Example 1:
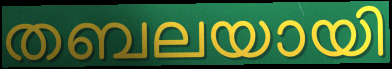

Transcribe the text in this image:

തബലയായി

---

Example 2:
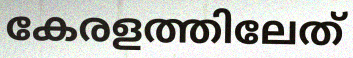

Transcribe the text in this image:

കേരളത്തിലേത്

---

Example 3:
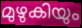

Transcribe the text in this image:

മുഴുകിയും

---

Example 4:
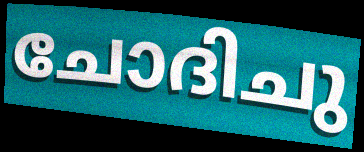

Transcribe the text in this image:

ചോദിചു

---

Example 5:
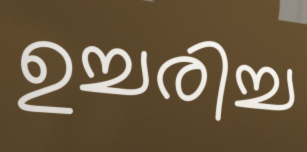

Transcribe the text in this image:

ഉച്ചരിച്ച